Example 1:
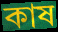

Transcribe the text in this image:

কাষ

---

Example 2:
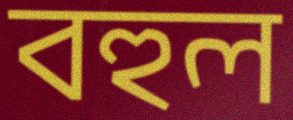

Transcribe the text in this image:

বহুল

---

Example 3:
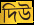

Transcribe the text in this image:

দিউ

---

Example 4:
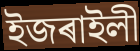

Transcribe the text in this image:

ইজৰাইলী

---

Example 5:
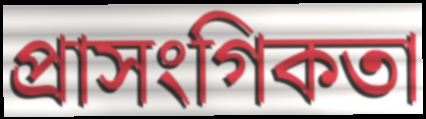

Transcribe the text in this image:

প্ৰাসংগিকতা